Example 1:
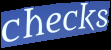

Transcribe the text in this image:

checks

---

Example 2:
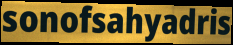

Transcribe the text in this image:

sonofsahyadris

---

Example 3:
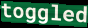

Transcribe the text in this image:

toggled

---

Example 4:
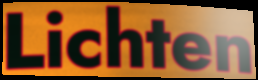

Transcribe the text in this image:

Lichten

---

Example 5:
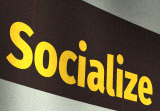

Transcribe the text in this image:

Socialize